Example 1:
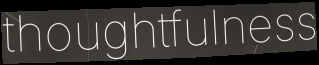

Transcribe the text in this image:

thoughtfulness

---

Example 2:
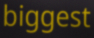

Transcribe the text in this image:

biggest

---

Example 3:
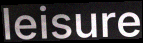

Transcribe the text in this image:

leisure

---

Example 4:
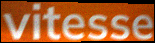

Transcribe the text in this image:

vitesse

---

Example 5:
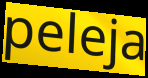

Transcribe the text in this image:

peleja